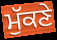
ਮੁੱਕਣੇ